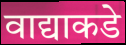
वाद्याकडे